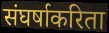
संघर्षाकरिता